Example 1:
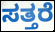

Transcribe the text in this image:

ಸತ್ತರೆ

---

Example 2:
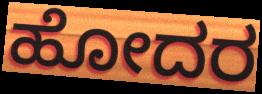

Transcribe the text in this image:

ಹೋದರ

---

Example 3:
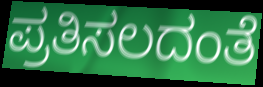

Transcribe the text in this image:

ಪ್ರತಿಸಲದಂತೆ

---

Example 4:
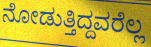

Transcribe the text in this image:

ನೋಡುತ್ತಿದ್ದವರೆಲ್ಲ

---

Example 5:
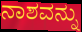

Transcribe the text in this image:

ನಾಶವನ್ನು